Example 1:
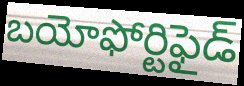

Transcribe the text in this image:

బయోఫోర్టిఫైడ్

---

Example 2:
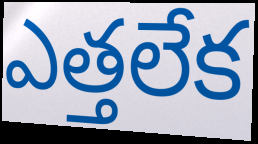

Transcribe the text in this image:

ఎత్తలేక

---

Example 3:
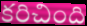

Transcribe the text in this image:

కరిచింది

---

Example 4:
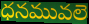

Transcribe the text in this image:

ధనమువలె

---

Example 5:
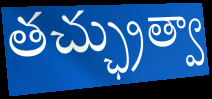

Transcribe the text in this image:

తచ్ఛ్రుత్వా